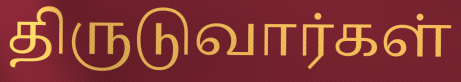
திருடுவார்கள்